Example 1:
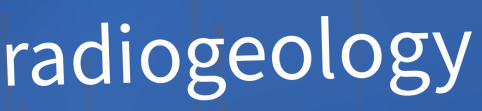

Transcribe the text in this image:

radiogeology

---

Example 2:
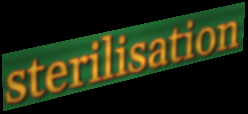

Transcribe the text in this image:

sterilisation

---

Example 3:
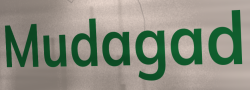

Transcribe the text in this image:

Mudagad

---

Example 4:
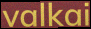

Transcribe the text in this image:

valkai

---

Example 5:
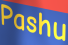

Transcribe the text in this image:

Pashu